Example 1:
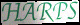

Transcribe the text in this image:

HARPS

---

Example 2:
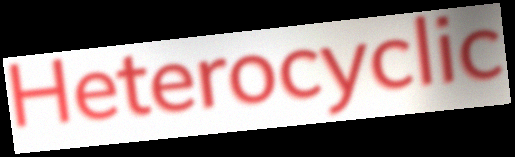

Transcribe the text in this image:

Heterocyclic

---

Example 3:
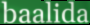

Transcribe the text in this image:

baalida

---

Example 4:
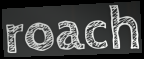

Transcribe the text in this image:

roach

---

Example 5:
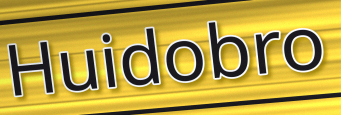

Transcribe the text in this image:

Huidobro